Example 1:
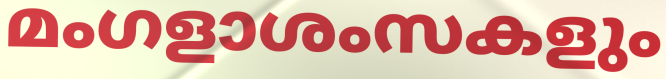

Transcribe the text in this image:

മംഗളാശംസകളും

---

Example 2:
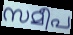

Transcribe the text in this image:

സമീപ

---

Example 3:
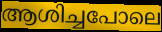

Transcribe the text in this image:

ആശിച്ചപോലെ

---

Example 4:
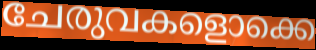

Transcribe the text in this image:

ചേരുവകളൊക്കെ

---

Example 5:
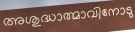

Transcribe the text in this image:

അശുദ്ധാത്മാവിനോടു